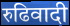
रुढिवादी